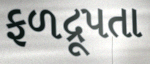
ફળદ્રૂપતા